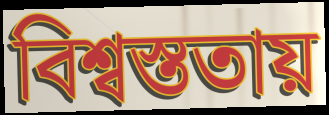
বিশ্বস্ততায়